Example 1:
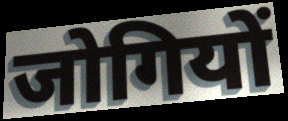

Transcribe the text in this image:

जोगियों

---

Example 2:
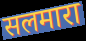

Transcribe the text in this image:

सलमारा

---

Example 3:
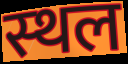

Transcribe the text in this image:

स्‍थल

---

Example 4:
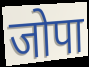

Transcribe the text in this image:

जोपा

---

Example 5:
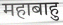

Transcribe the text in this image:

महाबाहु